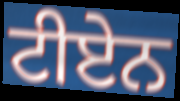
ਟੀਏਨ